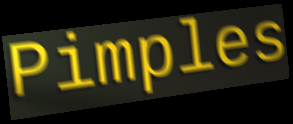
Pimples